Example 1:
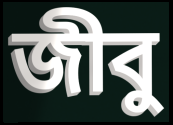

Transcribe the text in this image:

জীবু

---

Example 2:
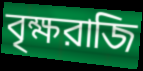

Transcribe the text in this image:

বৃক্ষরাজি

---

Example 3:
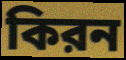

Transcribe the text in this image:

কিরন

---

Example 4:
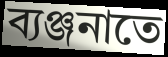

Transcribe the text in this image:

ব্যঞ্জনাতে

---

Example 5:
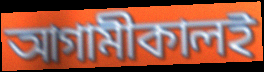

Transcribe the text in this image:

আগামীকালই